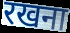
रखना